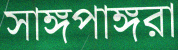
সাঙ্গপাঙ্গরা